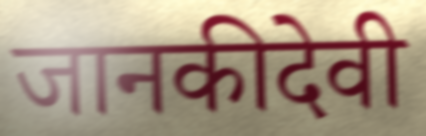
जानकीदेवी